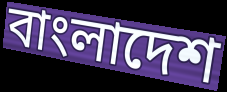
বাংলাদেশ